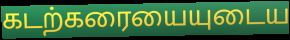
கடற்கரையையுடைய